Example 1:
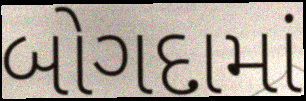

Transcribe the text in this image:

બોગદામાં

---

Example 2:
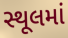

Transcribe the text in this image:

સ્થૂલમાં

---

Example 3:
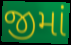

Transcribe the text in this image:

જીમાં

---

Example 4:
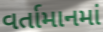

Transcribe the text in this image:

વર્તામાનમાં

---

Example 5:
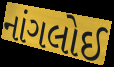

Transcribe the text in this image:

નાંગલોઈ